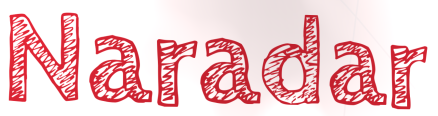
Naradar